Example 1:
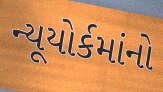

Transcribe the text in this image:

ન્યૂયોર્કમાંનો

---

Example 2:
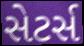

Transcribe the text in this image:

સેટર્સ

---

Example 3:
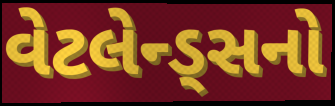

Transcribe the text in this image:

વેટલેન્ડ્સનો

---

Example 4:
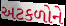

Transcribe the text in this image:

અટકળોને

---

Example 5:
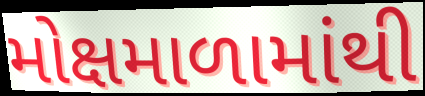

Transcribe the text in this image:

મોક્ષમાળામાંથી